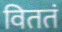
विततं